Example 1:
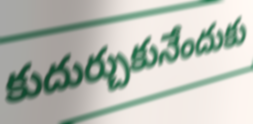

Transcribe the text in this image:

కుదుర్చుకునేందుకు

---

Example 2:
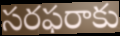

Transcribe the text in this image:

సరఫరాకు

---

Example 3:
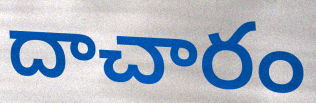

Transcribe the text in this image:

దాచారం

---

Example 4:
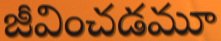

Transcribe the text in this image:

జీవించడమూ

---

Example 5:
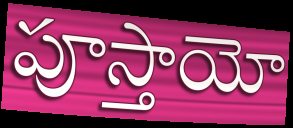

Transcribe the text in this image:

పూస్తాయో